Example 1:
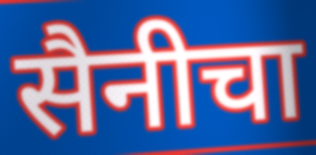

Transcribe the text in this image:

सैनीचा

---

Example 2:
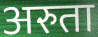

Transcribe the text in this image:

अरुता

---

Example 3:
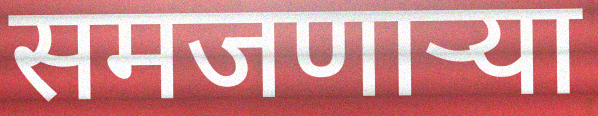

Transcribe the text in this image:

समजणाऱ्या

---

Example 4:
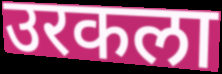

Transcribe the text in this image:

उरकला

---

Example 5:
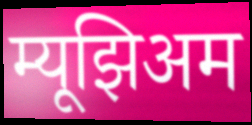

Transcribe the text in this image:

म्यूझिअम